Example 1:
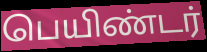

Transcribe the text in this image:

பெயிண்டர்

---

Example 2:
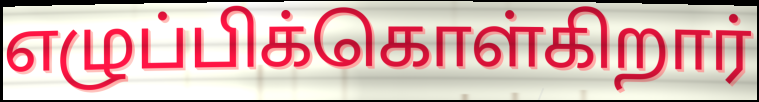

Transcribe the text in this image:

எழுப்பிக்கொள்கிறார்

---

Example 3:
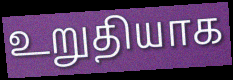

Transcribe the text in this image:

உறுதியாக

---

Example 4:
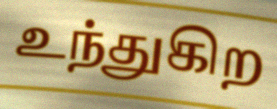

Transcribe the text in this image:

உந்துகிற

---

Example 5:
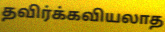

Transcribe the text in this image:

தவிர்க்கவியலாத